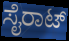
ಸೈರಾಟ್